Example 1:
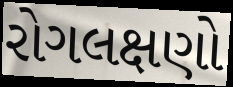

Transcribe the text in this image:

રોગલક્ષણો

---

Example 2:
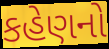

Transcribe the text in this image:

કહેણનો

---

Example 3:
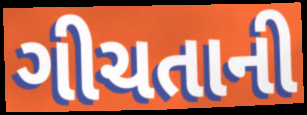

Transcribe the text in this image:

ગીચતાની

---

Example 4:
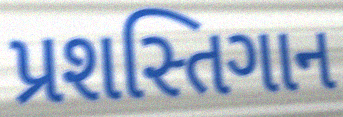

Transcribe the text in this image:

પ્રશસ્તિગાન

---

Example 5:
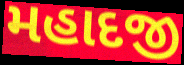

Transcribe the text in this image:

મહાદજી